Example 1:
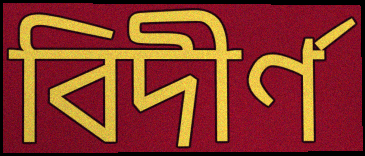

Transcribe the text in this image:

বিদীর্ণ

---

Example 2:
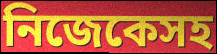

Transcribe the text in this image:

নিজেকেসহ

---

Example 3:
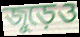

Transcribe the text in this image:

জুড়েও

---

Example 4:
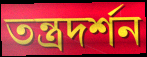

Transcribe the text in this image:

তন্ত্রদর্শন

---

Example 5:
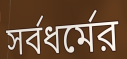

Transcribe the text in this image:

সর্বধর্মের